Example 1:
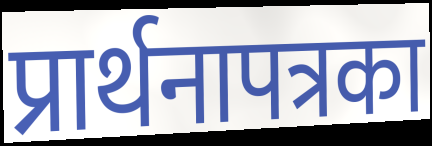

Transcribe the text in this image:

प्रार्थनापत्रका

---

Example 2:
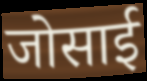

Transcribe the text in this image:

जोसाई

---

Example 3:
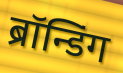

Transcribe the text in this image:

ब्रॉन्डिंग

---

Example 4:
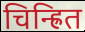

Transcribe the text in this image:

चिन्ह्रित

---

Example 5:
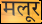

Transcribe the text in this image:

मलूर